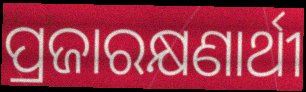
ପ୍ରଜାରକ୍ଷଣାର୍ଥୀ